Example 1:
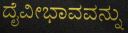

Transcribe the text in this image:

ದೈವೀಭಾವವನ್ನು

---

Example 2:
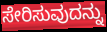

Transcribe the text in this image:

ಸೇರಿಸುವುದನ್ನು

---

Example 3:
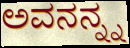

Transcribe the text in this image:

ಅವನನ್ನ್ನ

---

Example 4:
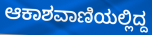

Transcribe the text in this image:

ಆಕಾಶವಾಣಿಯಲ್ಲಿದ್ದ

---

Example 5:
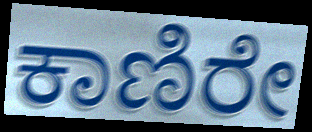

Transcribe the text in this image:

ಕಾಣಿರೇ